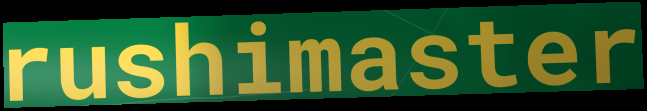
rushimaster